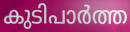
കുടിപാർത്ത